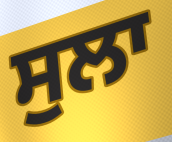
ਸੁਲਾ